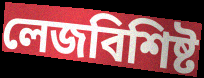
লেজবিশিষ্ট